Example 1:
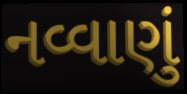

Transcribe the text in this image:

નવ્વાણું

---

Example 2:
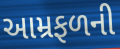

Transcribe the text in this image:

આમ્રફળની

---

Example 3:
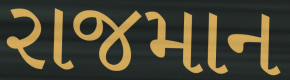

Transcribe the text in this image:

રાજમાન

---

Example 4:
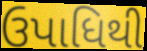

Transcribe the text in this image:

ઉપાધિથી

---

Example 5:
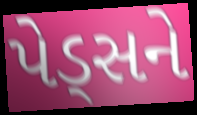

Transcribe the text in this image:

પેડ્સને